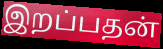
இறப்பதன்